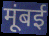
मूंबई